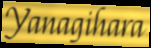
Yanagihara